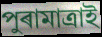
পুৰামাত্ৰাই